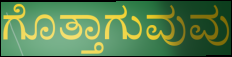
ಗೊತ್ತಾಗುವುವು